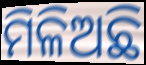
ମିଳିଅଛି